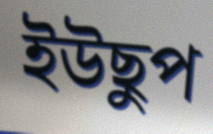
ইউছুপ